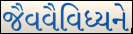
જૈવવૈવિધ્યને